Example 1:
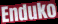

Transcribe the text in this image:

Enduko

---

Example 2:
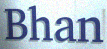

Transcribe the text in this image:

Bhan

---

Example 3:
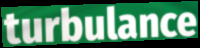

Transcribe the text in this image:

turbulance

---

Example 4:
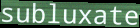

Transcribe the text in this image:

subluxate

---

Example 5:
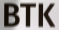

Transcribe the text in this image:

BTK